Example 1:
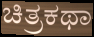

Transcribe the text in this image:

ಚಿತ್ರಕಥಾ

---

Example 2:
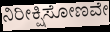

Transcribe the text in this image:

ನಿರೀಕ್ಷಿಸೋಣವೇ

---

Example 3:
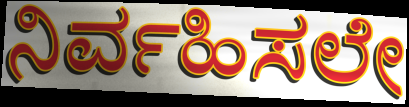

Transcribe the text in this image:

ನಿರ್ವಹಿಸಲೇ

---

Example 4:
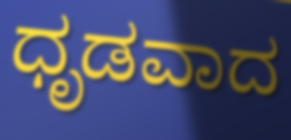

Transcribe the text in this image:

ಧೃಡವಾದ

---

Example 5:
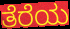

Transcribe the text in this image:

ತೆರೆಯ